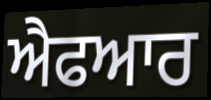
ਐਫਆਰ